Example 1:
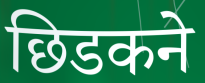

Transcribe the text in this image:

छिडकने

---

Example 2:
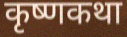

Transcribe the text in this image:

कृष्णकथा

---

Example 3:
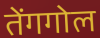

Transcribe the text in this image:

तेंगगोल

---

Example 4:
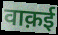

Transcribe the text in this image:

वाक़ई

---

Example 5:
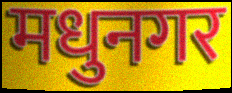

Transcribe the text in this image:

मधुनगर